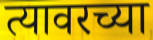
त्यावरच्या